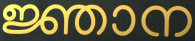
ജ്ഞാന